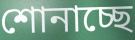
শোনাচ্ছে